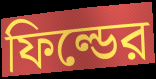
ফিল্ডের